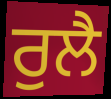
ਰੁਲੈ